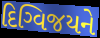
દિગ્વિજયને